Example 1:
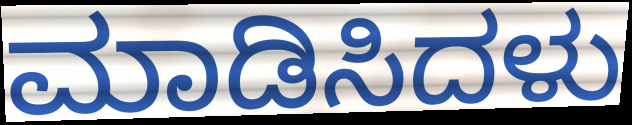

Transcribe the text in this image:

ಮಾಡಿಸಿದಳು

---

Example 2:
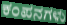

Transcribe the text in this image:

ಕಂಪನಗಳು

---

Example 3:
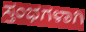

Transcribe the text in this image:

ಸ್ತಂಭಗಳಾಗಿ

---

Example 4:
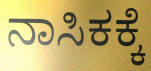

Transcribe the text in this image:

ನಾಸಿಕಕ್ಕೆ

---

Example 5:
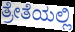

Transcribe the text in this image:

ತ್ರೇತೆಯಲ್ಲಿ